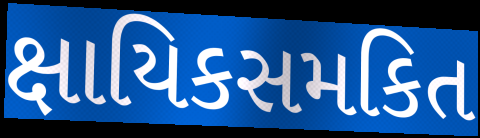
ક્ષાયિકસમકિત